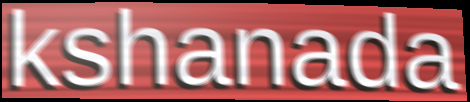
kshanada